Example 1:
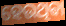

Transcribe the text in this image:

ହେଉଥିଵା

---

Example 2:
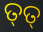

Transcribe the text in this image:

ତ୍‌ତ୍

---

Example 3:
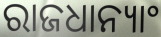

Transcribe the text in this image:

ରାଜଧାନ୍ୟାଂ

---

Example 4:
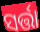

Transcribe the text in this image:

ସର୍ତ୍ତା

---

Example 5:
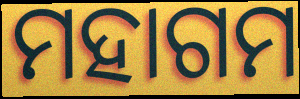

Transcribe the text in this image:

ମହାଗମ